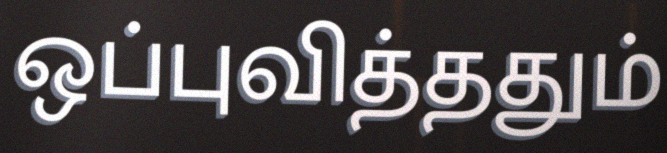
ஒப்புவித்ததும்